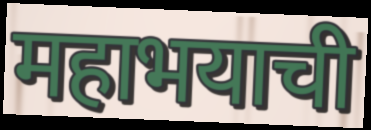
महाभयाची